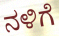
ನಳಿಗೆ